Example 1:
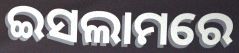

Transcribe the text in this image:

ଇସଲାମରେ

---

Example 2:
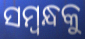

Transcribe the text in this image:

ସମ୍ବନ୍ଧକୁ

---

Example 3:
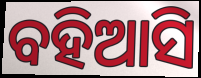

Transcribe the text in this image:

ବହିଆସି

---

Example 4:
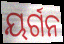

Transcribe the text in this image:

ୟର୍ଗନ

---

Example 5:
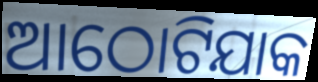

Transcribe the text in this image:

ଆଠୋଟିଯାକ